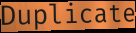
Duplicate